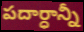
పదార్ధాన్నీ